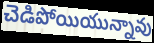
చెడిపోయియున్నావు